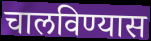
चालविण्यास